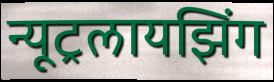
न्यूट्रलायझिंग